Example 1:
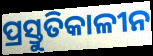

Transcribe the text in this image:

ପ୍ରସ୍ତୁତିକାଳୀନ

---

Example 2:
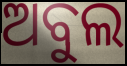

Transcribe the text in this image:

ଅବୁଲ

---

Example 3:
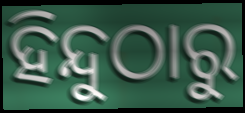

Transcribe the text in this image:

ହିନ୍ଦୁଠାରୁ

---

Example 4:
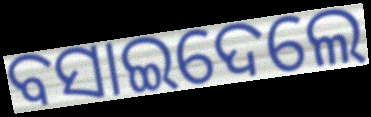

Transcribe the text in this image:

ବସାଇଦେଲେ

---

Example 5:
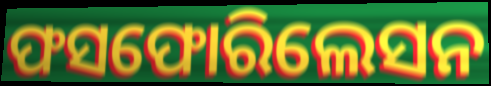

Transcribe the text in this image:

ଫସଫୋରିଲେସନ